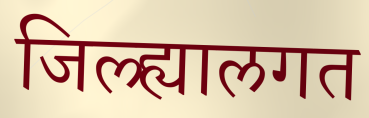
जिल्ह्यालगत